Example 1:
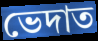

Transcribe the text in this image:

ভেদাত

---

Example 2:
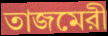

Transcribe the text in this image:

তাজমেরী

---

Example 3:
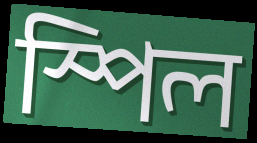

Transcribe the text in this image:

স্পিল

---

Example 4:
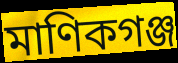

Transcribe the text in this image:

মাণিকগঞ্জ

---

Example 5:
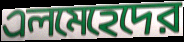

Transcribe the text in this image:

এলমেহেদের